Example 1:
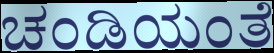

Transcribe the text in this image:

ಚಂಡಿಯಂತೆ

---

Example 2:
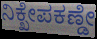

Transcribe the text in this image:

ನಿಕ್ಖೇಪಕಣ್ಡೇ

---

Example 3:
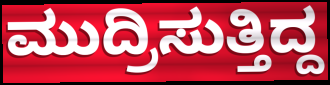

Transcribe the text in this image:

ಮುದ್ರಿಸುತ್ತಿದ್ದ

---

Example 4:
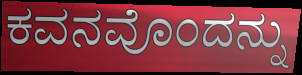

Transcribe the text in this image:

ಕವನವೊಂದನ್ನು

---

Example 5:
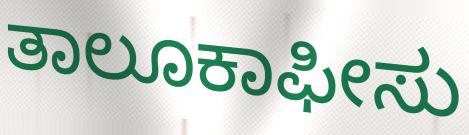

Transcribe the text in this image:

ತಾಲೂಕಾಫೀಸು